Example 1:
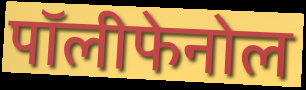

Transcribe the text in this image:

पॉलीफेनोल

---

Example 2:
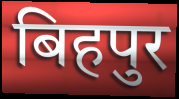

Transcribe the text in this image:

बिहपुर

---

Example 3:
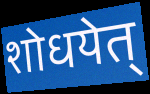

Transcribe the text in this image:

शोधयेत्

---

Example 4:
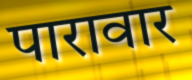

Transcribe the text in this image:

पारावार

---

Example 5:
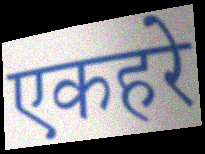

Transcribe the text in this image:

एकहरे